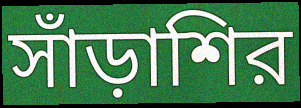
সাঁড়াশির